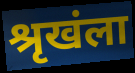
श्रृखंला